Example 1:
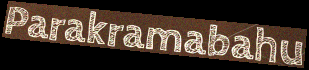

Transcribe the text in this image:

Parakramabahu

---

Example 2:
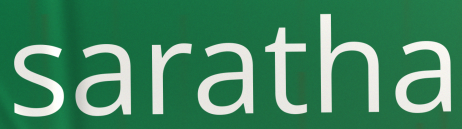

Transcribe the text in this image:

saratha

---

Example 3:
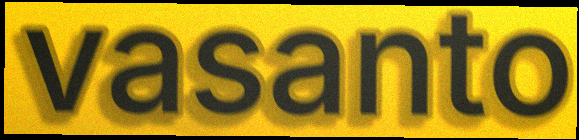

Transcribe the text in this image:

vasanto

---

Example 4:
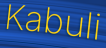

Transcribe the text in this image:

Kabuli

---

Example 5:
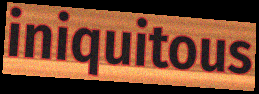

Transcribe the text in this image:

iniquitous